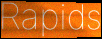
Rapids